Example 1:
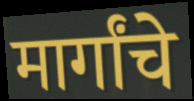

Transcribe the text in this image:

मार्गांचे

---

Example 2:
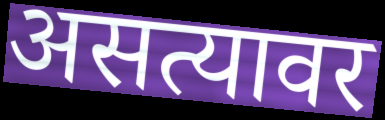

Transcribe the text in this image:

असत्यावर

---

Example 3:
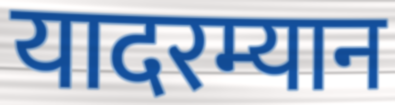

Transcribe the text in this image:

यादरम्यान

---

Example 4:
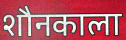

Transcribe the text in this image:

शौनकाला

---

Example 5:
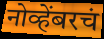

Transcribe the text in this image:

नोव्हेंबरचं